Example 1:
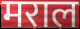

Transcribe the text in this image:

मराल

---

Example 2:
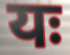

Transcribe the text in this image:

यः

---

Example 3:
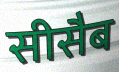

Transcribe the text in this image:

सीसैब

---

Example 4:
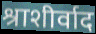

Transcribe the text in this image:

श्राशीर्वाद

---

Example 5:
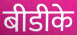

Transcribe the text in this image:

बीडीके